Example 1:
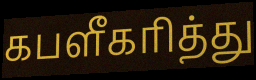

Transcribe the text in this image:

கபளீகரித்து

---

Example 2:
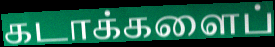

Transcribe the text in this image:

கடாக்களைப்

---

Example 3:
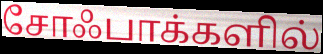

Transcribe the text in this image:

சோஃபாக்களில்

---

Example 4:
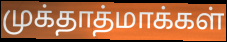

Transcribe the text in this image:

முக்தாத்மாக்கள்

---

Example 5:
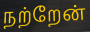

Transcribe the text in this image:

நற்றேன்